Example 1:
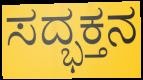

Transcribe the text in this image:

ಸದ್ಭಕ್ತನ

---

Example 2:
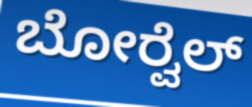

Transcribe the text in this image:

ಬೋರ್‍ವೆಲ್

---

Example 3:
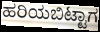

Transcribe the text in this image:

ಹರಿಯಬಿಟ್ಟಾಗ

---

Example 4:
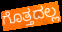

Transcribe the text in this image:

ಗೊತ್ತದಲ್ಲ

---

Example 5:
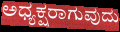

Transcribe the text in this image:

ಅಧ್ಯಕ್ಷರಾಗುವುದು